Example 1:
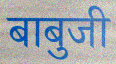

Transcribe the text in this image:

बाबुजी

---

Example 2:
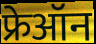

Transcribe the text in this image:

फ्रेऑन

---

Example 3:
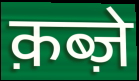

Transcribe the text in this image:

क़ब्ज़े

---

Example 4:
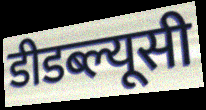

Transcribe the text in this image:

डीडब्ल्यूसी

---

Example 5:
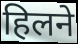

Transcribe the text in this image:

हिलने